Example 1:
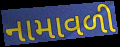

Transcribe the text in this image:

નામાવળી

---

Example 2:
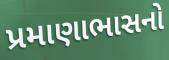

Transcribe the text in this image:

પ્રમાણાભાસનો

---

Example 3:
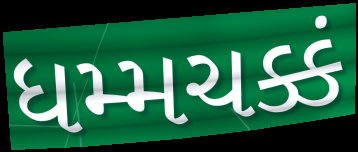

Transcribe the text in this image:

ધમ્મચક્કં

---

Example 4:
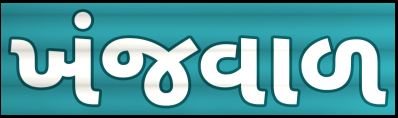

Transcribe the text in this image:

ખંજવાળ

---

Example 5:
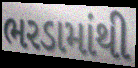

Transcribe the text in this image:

ભરડામાંથી